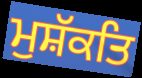
ਮੁਸ਼ੱਕਤਿ